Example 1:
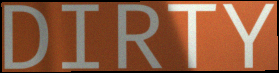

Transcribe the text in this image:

DIRTY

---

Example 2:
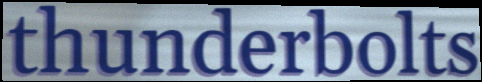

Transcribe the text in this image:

thunderbolts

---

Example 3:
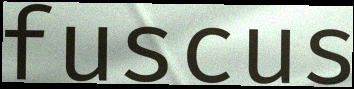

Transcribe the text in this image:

fuscus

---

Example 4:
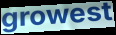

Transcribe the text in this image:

growest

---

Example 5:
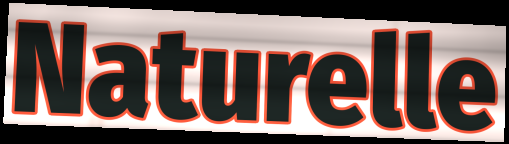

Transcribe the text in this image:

Naturelle